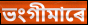
ভংগীমাৰে